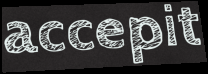
accepit